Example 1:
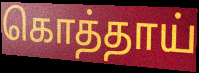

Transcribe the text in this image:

கொத்தாய்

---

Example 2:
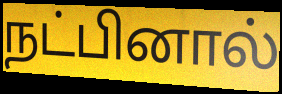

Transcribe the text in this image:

நட்பினால்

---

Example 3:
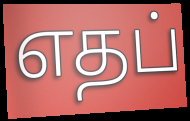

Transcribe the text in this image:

எதப்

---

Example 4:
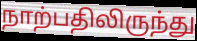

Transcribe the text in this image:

நாற்பதிலிருந்து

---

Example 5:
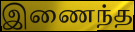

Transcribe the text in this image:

இணைந்த